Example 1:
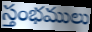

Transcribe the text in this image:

స్తంభములు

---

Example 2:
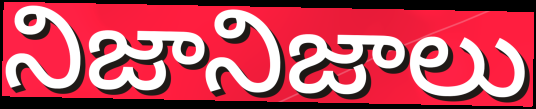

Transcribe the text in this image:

నిజానిజాలు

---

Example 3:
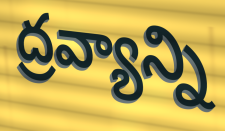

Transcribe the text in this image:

ద్రవ్యాన్ని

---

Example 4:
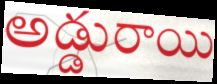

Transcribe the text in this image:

అడ్డురాయి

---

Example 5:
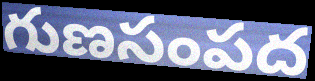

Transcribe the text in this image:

గుణసంపద